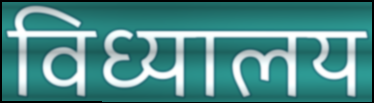
विध्यालय